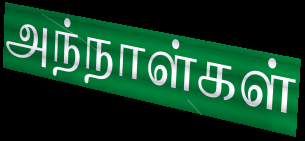
அந்நாள்கள்